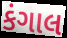
કંગાલ